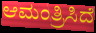
ಆಮಂತ್ರಿಸಿದೆ